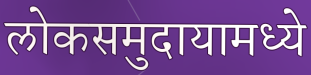
लोकसमुदायामध्ये